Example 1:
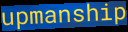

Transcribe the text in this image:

upmanship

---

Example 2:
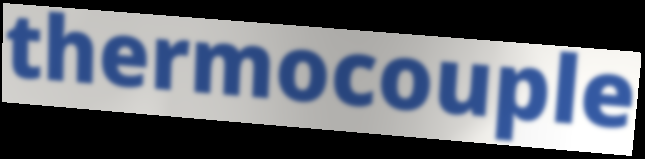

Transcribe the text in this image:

thermocouple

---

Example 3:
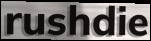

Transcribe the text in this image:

rushdie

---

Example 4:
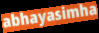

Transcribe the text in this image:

abhayasimha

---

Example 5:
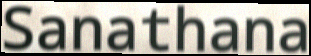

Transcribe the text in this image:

Sanathana